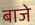
बाजे